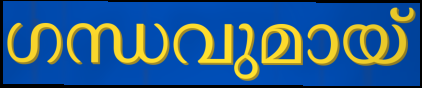
ഗന്ധവുമായ്